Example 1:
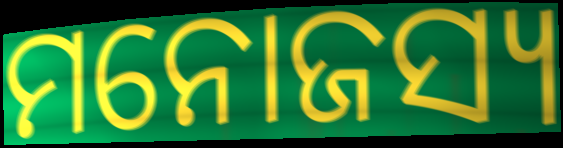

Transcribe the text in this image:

ମନୋଜସ୍ୟ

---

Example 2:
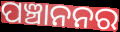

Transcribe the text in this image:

ପଞ୍ଚାନନର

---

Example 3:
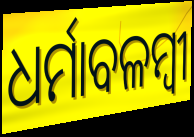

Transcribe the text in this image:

ଧର୍ମାବଳମ୍ବୀ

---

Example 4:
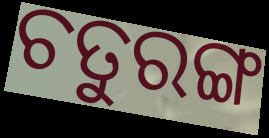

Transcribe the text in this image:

ଚତୁରଙ୍ଗ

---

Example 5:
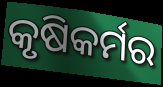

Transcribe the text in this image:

କୃଷିକର୍ମର